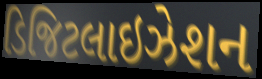
ડિજિટલાઇઝેશન